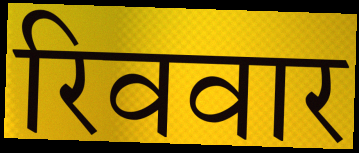
रिववार